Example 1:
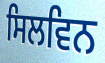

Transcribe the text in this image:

ਸਿਲਵਿਨ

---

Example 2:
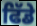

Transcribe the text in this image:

ਫਿੱਡੇ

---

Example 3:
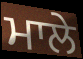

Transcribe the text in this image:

ਮਾਲੇ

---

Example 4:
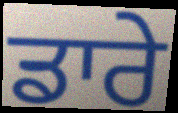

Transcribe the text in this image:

ਡਾਰੇ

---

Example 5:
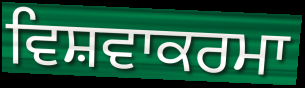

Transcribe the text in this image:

ਵਿਸ਼ਵਾਕਰਮਾ